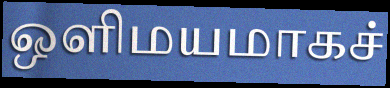
ஒளிமயமாகச்